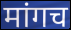
मांगच